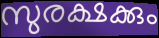
സുരക്ഷക്കും